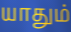
யாதும்